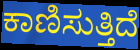
ಕಾಣಿಸುತ್ತಿದೆ